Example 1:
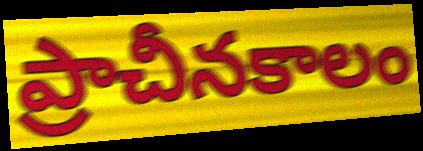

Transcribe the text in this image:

ప్రాచీనకాలం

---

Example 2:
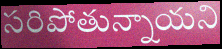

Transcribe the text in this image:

సరిపోతున్నాయని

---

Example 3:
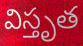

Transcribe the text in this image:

విస్తృత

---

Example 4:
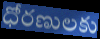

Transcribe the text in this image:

ధోరణులకు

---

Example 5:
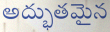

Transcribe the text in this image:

అద్భుతమైన